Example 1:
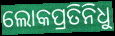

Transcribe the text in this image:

ଲୋକପ୍ରତିନିଧୁ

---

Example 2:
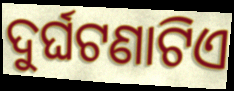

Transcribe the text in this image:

ଦୁର୍ଘଟଣାଟିଏ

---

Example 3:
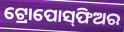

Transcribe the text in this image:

ଟ୍ରୋପୋସ୍‌ଫିଅର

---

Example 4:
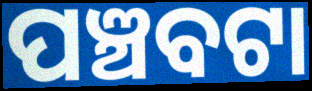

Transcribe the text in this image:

ପଞ୍ଚବଟା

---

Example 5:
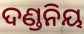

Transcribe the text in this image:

ଦଣ୍ଡନିୟ